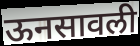
ऊनसावली